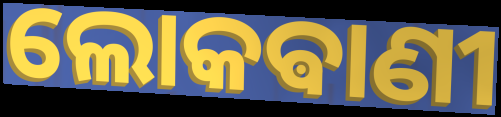
ଲୋକଵାଣୀ